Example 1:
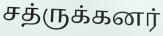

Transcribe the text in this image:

சத்ருக்கனர்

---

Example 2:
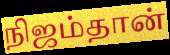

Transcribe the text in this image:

நிஜம்தான்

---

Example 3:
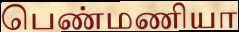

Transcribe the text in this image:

பெண்மணியா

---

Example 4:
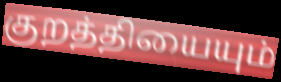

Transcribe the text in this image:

குறத்தியையும்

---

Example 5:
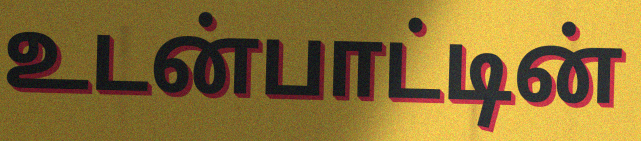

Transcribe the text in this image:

உடன்பாட்டின்